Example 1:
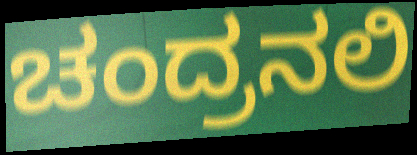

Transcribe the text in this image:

ಚಂದ್ರನಲಿ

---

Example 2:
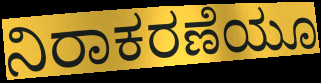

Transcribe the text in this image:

ನಿರಾಕರಣೆಯೂ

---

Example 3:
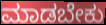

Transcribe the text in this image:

ಮಾಡಬೇಕು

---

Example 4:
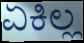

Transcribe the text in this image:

ಏಕಿಲ್ಲ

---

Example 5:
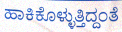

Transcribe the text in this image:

ಹಾಕಿಕೊಳ್ಳುತ್ತಿದ್ದಂತೆ